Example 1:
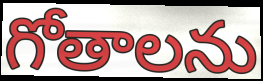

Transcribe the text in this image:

గోతాలను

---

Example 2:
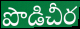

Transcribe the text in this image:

పొడిచీర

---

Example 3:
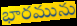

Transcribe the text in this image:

భారమును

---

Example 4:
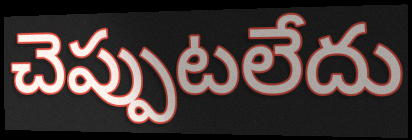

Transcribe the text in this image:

చెప్పుటలేదు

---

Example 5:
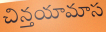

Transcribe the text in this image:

చిన్తయామాస